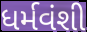
ધર્મવંશી